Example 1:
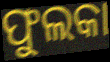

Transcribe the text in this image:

ଫୁଲକା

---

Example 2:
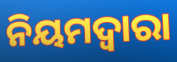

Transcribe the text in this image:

ନିୟମଦ୍ଵାରା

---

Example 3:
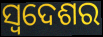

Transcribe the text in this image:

ସ୍ଵଦେଶର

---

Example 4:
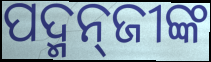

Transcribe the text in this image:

ପଦ୍ମନ୍‌ଜୀଙ୍କ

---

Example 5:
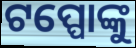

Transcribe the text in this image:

ଟପ୍ପୋଙ୍କୁ